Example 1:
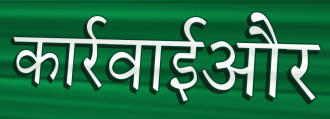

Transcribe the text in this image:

कार्रवाईऔर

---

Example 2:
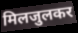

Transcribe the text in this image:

मिलजुलकर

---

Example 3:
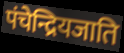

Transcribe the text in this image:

पंचेन्द्रियजाति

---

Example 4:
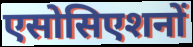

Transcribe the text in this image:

एसोसिएशनों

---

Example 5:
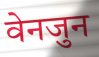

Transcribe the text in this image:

वेनजुन